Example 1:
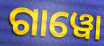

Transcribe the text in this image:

ଗାୱୋ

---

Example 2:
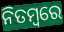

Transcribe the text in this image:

ନିତମ୍ୱରେ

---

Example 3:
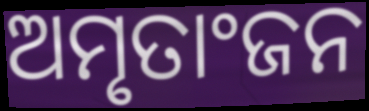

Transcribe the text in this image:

ଅମୃତାଂଜନ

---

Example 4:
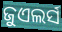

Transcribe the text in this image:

ଜୁଏଲର୍ସ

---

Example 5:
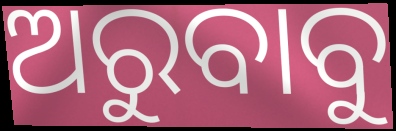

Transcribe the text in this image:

ଅରୁବାବୁ